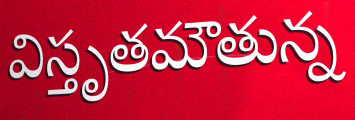
విస్తృతమౌతున్న